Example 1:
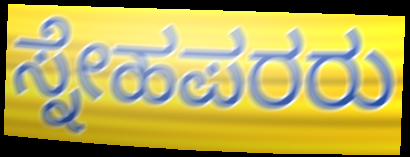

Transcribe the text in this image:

ಸ್ನೇಹಪರರು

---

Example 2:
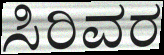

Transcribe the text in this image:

ಸಿರಿವರ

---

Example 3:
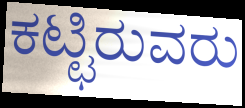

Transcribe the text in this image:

ಕಟ್ಟಿರುವರು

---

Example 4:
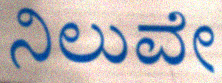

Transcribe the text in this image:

ನಿಲುವೇ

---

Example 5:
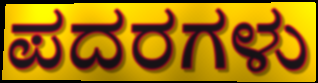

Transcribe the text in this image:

ಪದರಗಳು